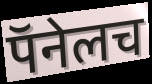
पॅनेलच